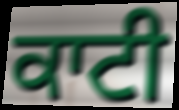
ਕਾਟੀ